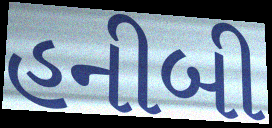
હનીબી